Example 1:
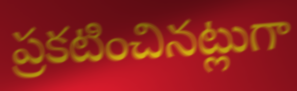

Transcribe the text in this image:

ప్రకటించినట్లుగా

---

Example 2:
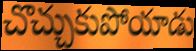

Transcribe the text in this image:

చొచ్చుకుపోయాడు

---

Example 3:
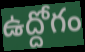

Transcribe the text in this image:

ఉద్దోగం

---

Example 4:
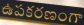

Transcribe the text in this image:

ఉపకరణంగా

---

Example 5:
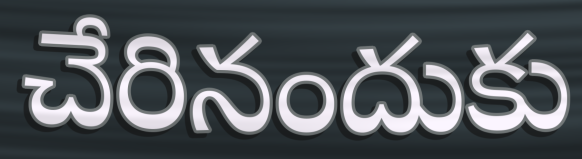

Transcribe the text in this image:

చేరినందుకు